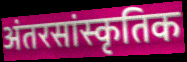
अंतरसांस्कृतिक